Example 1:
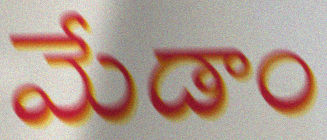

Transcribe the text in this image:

మేడాం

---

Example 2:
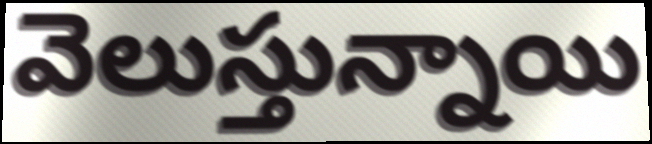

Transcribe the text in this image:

వెలుస్తున్నాయి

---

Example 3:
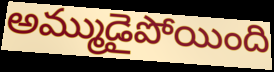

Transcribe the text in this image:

అమ్ముడైపోయింది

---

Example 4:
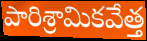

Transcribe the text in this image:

పారిశ్రామికవేత్త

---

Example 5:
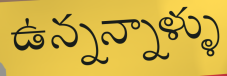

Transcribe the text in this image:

ఉన్నన్నాళ్ళు